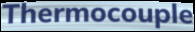
Thermocouple